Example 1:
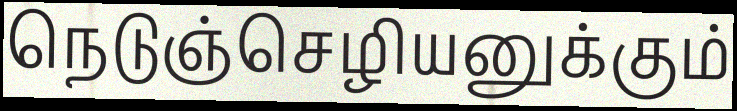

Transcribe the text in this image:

நெடுஞ்செழியனுக்கும்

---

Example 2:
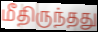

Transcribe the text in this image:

மீதிருந்தது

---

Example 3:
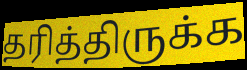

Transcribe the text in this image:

தரித்திருக்க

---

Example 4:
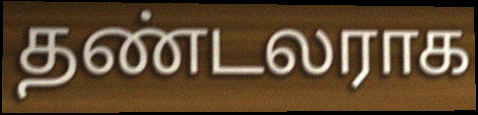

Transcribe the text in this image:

தண்டலராக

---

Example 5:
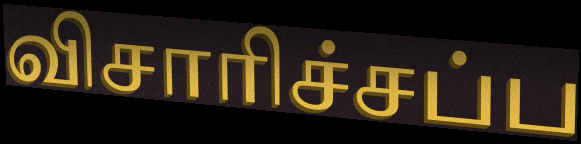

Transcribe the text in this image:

விசாரிச்சப்ப